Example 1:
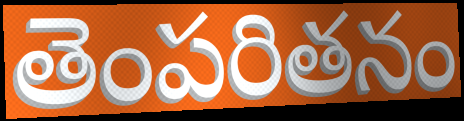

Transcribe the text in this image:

తెంపరితనం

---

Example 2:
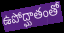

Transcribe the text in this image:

ఉపోద్ఘాతంతో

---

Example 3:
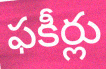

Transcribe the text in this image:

ఫకీర్లు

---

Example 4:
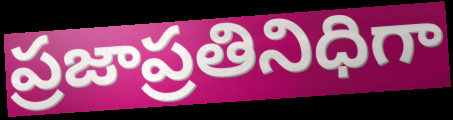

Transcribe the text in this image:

ప్రజాప్రతినిధిగా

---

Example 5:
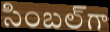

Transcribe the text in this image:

సింబల్‌గా